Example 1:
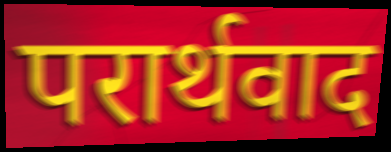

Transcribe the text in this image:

परार्थवाद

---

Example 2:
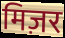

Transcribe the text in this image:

मिज़र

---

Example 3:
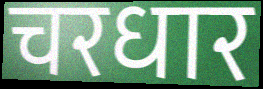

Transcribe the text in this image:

चरधार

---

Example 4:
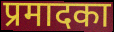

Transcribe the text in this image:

प्रमादका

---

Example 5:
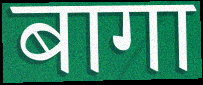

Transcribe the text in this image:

बागा